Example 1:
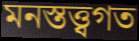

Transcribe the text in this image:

মনস্তত্ত্বগত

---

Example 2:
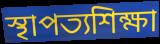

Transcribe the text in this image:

স্থাপত্যশিক্ষা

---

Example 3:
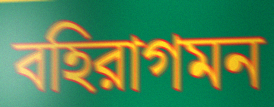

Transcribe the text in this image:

বহিরাগমন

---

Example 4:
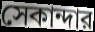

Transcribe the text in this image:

সেকান্দার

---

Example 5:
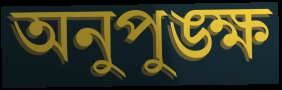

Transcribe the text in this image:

অনুপুঙ্ক্ষ